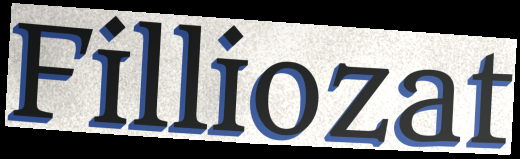
Filliozat